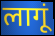
लागूं